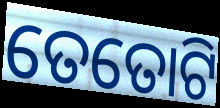
ତେତୋଟି